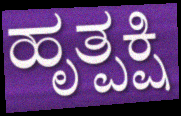
ಹೃತ್ಪಕ್ಷಿ